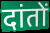
दांतों